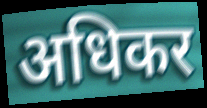
अधिकर